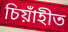
চিয়াঁহীত